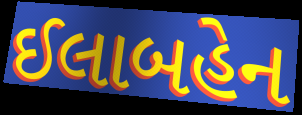
ઈલાબહેન